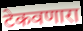
टेकवणारा